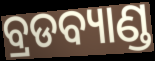
ବ୍ରଡବ୍ୟାଣ୍ଡ